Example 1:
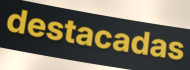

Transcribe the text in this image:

destacadas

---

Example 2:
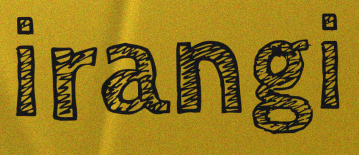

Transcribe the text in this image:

irangi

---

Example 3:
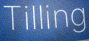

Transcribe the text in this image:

Tilling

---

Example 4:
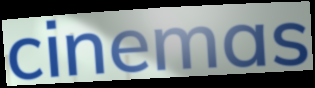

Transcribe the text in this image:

cinemas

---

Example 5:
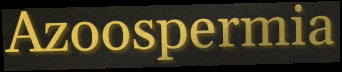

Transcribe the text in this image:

Azoospermia